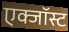
एक्जॉस्ट